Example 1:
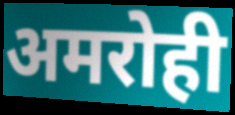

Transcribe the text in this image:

अमरोही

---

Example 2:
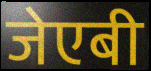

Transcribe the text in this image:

जेएबी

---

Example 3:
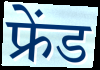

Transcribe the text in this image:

फ्रेंड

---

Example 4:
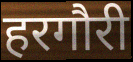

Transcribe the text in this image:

हरगौरी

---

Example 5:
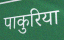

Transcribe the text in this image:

पाकुरिया